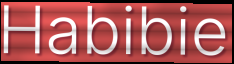
Habibie